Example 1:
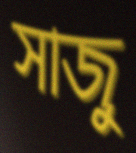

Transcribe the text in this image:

সাজু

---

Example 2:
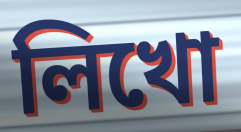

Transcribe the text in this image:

লিখো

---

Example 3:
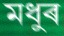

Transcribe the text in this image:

মধুৰ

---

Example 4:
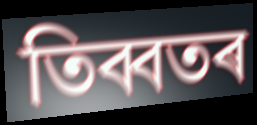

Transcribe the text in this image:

তিব্বতৰ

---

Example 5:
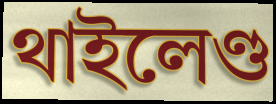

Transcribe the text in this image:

থাইলেণ্ড